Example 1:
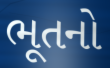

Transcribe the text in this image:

ભૂતનો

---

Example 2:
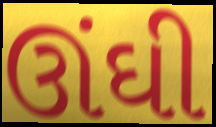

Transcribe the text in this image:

ઊંઘી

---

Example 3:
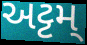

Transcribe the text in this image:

અટ્ટમ્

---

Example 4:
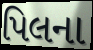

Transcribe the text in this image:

પિલના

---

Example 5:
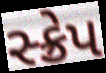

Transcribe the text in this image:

સ્ક્રેપ